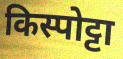
किस्पोट्टा